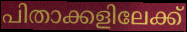
പിതാക്കളിലേക്ക്